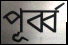
পূৰ্ব্ব